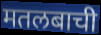
मतलबाची